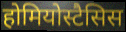
होमियोस्टैसिस